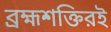
ব্রহ্মশক্তিরই